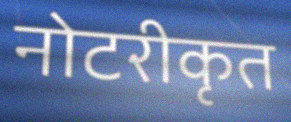
नोटरीकृत